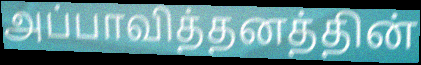
அப்பாவித்தனத்தின்